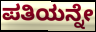
ಪತಿಯನ್ನೇ